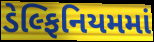
ડેલ્ફિનિયમમાં